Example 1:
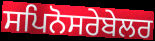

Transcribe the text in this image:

ਸਪਿਨੋਸਰੇਬੇਲਰ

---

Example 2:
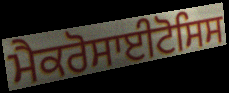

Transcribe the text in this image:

ਮੈਕਰੋਸਾਈਟੋਸਿਸ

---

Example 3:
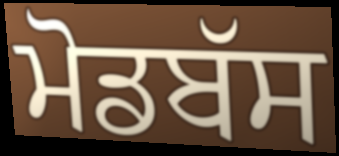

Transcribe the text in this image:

ਮੋਡਬੱਸ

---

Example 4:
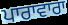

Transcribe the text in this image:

ਪਾਰਾਵਾਰਾ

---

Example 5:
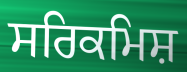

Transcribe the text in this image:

ਸਰਿਕਮਿਸ਼